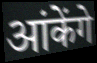
आंकेंगे